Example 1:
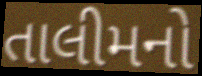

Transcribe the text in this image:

તાલીમનો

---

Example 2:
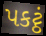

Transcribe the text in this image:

પકટ્ઠં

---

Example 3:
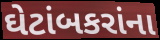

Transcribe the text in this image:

ઘેટાંબકરાંના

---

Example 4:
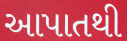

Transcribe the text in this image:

આપાતથી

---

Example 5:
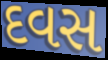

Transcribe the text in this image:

દવસ